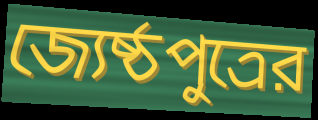
জ্যেষ্ঠপুত্রের